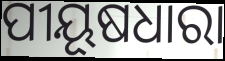
ପୀୟୂଷଧାରା